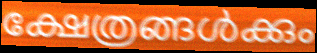
ക്ഷേത്രങ്ങൾക്കും